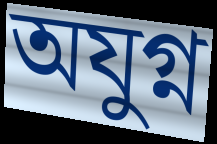
অযুগ্ন